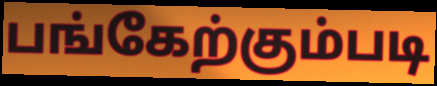
பங்கேற்கும்படி